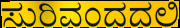
ಸುರಿವಂದದಲಿ